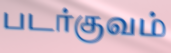
படர்குவம்